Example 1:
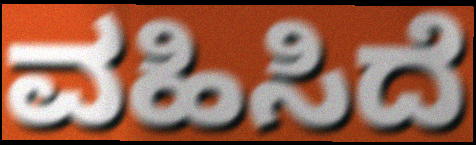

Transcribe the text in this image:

ವಹಿಸಿದೆ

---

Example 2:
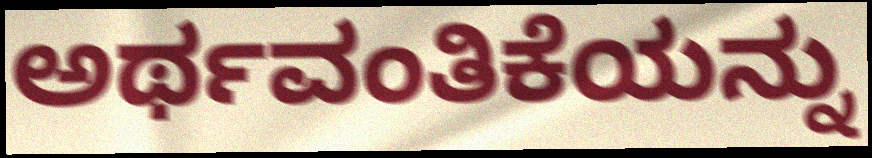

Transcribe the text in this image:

ಅರ್ಥವಂತಿಕೆಯನ್ನು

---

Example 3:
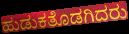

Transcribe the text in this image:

ಹುಡುಕತೊಡಗಿದರು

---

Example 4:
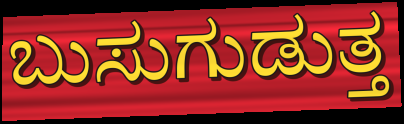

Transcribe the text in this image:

ಬುಸುಗುಡುತ್ತ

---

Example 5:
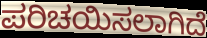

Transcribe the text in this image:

ಪರಿಚಯಿಸಲಾಗಿದೆ